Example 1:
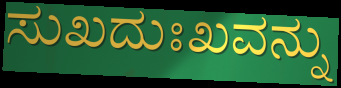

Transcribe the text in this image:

ಸುಖದುಃಖವನ್ನು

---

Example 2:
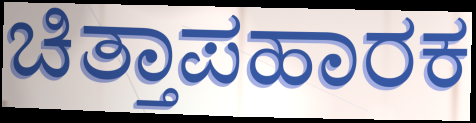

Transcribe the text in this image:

ಚಿತ್ತಾಪಹಾರಕ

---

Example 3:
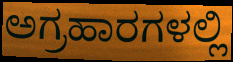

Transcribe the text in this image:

ಅಗ್ರಹಾರಗಳಲ್ಲಿ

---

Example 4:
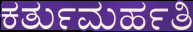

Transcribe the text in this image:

ಕರ್ತುಮರ್ಹತಿ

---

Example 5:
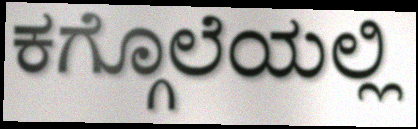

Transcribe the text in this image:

ಕಗ್ಗೊಲೆಯಲ್ಲಿ